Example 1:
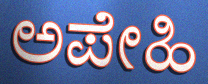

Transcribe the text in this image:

ಅಪೇಹಿ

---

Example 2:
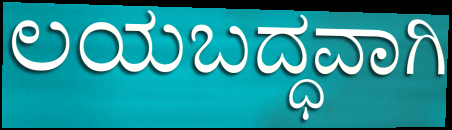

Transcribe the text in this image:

ಲಯಬದ್ಧವಾಗಿ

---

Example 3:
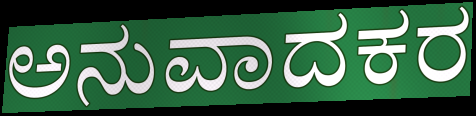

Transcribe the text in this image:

ಅನುವಾದಕರ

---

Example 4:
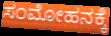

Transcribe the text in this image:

ಸಂಮೋಹನಕ್ಕೆ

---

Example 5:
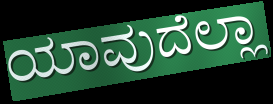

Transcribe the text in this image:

ಯಾವುದೆಲ್ಲಾ